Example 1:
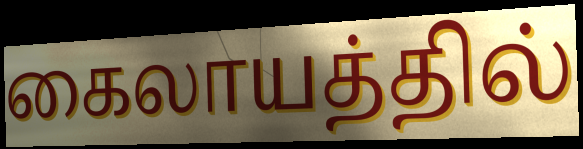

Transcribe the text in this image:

கைலாயத்தில்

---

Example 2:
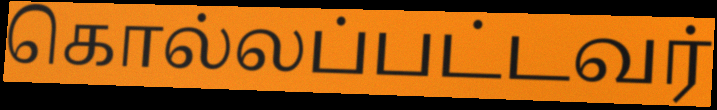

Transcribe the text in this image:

கொல்லப்பட்டவர்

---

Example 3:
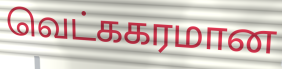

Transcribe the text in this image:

வெட்ககரமான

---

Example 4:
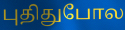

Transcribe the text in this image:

புதிதுபோல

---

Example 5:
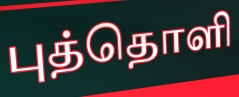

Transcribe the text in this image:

புத்தொளி